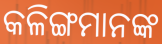
କଳିଙ୍ଗମାନଙ୍କ